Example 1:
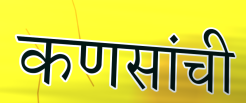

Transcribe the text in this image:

कणसांची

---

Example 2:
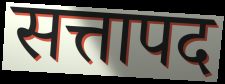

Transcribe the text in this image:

सत्तापद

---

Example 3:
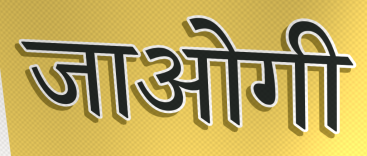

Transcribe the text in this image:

जाओगी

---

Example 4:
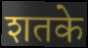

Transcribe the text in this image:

शतके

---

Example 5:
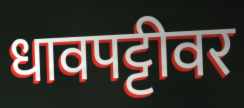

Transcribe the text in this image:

धावपट्टीवर